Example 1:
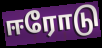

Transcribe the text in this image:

ஈரோடு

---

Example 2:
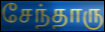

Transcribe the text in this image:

சேந்தாரு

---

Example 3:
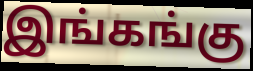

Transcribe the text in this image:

இங்கங்கு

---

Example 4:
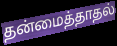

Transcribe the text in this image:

தன்மைத்தாதல்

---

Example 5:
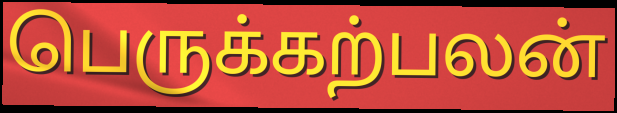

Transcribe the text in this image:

பெருக்கற்பலன்